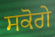
ਸਕੋਗੇ